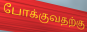
போக்குவதற்கு